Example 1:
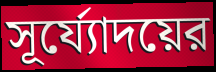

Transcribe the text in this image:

সূর্য্যোদয়ের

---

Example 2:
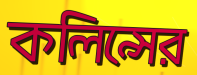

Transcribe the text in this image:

কলিন্সের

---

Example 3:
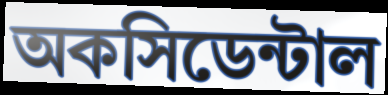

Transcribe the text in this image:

অকসিডেন্টাল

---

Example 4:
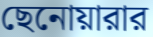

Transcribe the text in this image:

ছেনোয়ারার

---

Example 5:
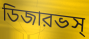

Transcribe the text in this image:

ডিজারভস্